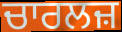
ਚਾਰਲਜ਼